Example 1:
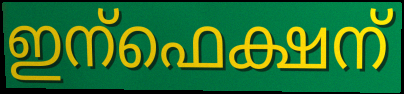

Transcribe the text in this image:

ഇന്ഫെക്ഷന്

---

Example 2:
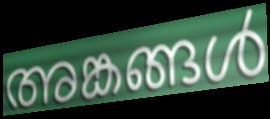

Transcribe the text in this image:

അങ്കങ്ങൾ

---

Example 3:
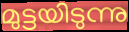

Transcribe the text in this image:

മുട്ടയിടുന്നു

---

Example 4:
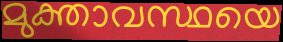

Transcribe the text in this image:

മുക്താവസ്ഥയെ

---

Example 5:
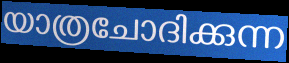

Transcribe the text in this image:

യാത്രചോദിക്കുന്ന